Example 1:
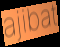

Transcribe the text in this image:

ajibat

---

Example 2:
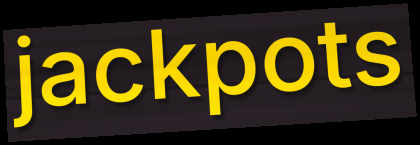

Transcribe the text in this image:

jackpots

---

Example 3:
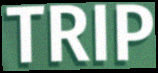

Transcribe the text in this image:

TRIP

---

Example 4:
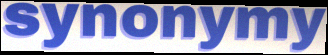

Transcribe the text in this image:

synonymy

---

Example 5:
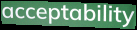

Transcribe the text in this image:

acceptability